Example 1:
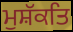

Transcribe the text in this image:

ਮੁਸ਼ੱਕਤਿ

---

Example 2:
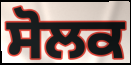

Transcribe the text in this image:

ਸੋਲਕ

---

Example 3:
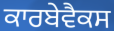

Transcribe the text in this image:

ਕਾਰਬੇਵੈਕਸ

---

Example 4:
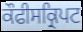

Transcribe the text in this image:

ਕੌਫੀਸਕ੍ਰਿਪਟ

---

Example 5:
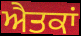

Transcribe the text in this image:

ਐਤਕਾਂ